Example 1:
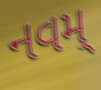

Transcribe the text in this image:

નવમ્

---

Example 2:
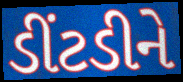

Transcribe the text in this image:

ડીંટડીને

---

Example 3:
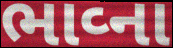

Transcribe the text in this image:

ભાવ્ના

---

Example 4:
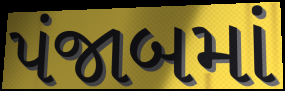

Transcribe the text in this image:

પંજાબમાં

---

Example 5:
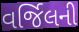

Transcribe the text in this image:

વર્જિલની